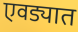
एवड्यात